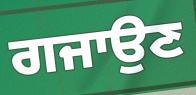
ਗਜਾਉਣ